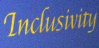
Inclusivity